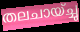
തലചായ്ച്ചു